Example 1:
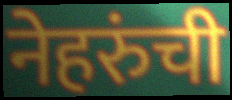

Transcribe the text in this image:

नेहरुंची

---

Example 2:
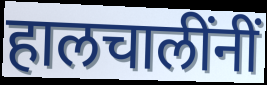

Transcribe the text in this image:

हालचालींनीं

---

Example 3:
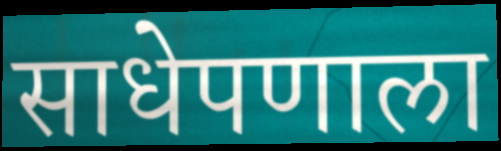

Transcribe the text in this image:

साधेपणाला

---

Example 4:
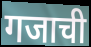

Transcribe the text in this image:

गजाची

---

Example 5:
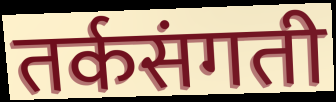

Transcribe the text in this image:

तर्कसंगती